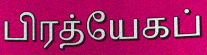
பிரத்யேகப்